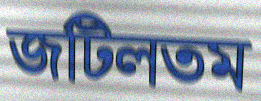
জটিলতম